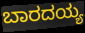
ಬಾರದಯ್ಯ